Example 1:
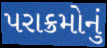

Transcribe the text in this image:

પરાક્રમોનું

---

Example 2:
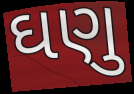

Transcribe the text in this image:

ઘણુ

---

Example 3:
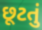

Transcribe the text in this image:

છૂટતું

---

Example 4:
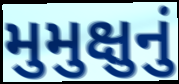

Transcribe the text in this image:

મુમુક્ષુનું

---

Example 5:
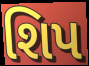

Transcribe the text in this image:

શિપ